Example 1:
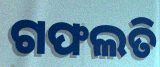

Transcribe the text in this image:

ଗଫଲତି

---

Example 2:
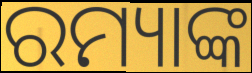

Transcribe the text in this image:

ରମ୍ୟାଙ୍କ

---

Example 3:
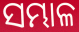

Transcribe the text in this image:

ସମ୍ଭାଳ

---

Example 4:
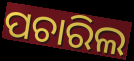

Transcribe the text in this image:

ପଚାରିଲ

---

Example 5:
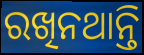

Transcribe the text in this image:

ରଖିନଥାନ୍ତି